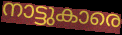
നാട്ടുകാരെ